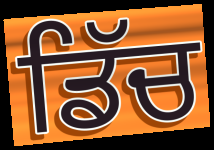
ਡਿੱਚ